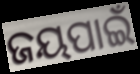
ଜୟପାଇଁ